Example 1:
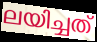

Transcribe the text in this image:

ലയിച്ചത്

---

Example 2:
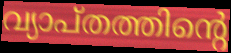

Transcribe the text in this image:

വ്യാപ്തത്തിന്റെ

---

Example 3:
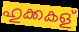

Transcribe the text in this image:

ഹുക്കകള്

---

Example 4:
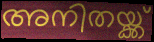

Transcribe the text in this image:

അനിതയ്ക്ക്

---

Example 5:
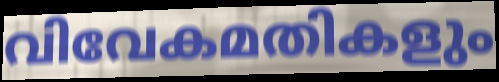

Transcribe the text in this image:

വിവേകമതികളും